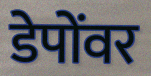
डेपोंवर